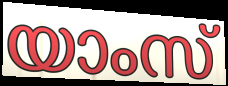
യാംസ്